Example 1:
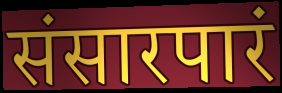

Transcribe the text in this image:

संसारपारं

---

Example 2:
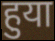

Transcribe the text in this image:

हुया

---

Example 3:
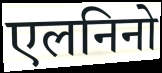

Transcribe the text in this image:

एलनिनो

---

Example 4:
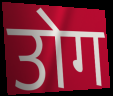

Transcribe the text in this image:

उोग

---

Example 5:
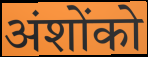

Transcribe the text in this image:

अंशोंको